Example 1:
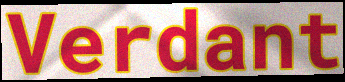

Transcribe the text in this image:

Verdant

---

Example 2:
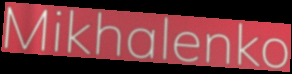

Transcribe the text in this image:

Mikhalenko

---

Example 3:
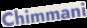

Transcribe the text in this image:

Chimmani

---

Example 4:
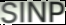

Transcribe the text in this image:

SINP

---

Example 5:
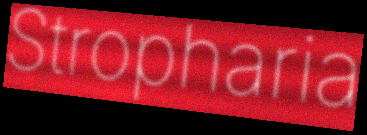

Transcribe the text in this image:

Stropharia